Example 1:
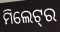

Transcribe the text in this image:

ମିଲେଟ୍‌ର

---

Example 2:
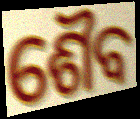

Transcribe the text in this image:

ଶୈବ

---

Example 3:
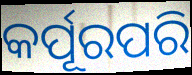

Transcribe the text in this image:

କର୍ପୂରପରି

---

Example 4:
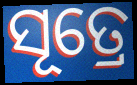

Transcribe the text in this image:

ସୂତ୍ରେ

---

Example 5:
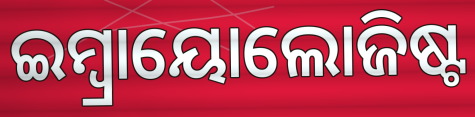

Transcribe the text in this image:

ଇମ୍ବ୍ରାୟୋଲୋଜିଷ୍ଟ